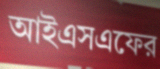
আইএসএফের